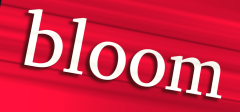
bloom